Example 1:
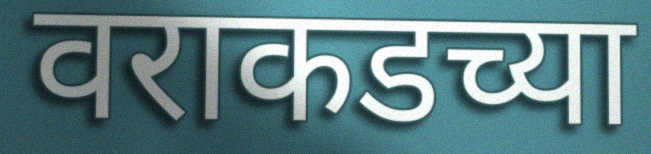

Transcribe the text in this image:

वराकडच्या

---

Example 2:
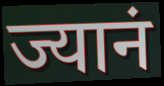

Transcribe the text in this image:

ज्यानं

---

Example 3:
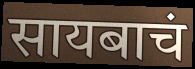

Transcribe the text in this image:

सायबाचं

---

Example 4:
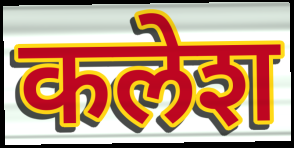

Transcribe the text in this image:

कलेश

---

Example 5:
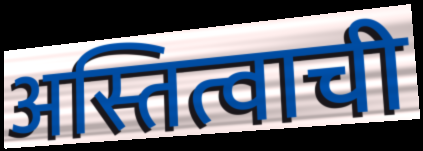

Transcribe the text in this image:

अस्तित्वाची